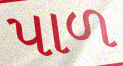
પાળ